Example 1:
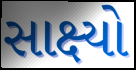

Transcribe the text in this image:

સાક્ષ્યો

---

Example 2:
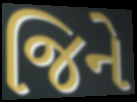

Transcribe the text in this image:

જિને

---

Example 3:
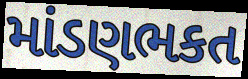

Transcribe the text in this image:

માંડણભકત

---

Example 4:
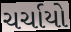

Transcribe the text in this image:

ચર્ચાયો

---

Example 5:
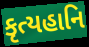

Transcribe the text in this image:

કૃત્યહાનિ